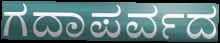
ಗದಾಪರ್ವದ